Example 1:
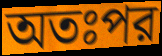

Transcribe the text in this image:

অতঃপর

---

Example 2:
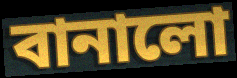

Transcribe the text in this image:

বানালো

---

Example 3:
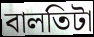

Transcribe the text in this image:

বালতিটা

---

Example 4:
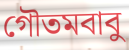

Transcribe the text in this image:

গৌতমবাবু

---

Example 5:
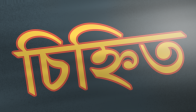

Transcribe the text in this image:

চিহ্নিত